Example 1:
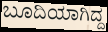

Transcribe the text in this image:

ಬೂದಿಯಾಗಿದ್ದ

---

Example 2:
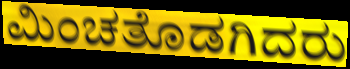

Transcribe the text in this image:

ಮಿಂಚತೊಡಗಿದರು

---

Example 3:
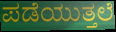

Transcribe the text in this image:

ಪಡೆಯುತ್ತಲೆ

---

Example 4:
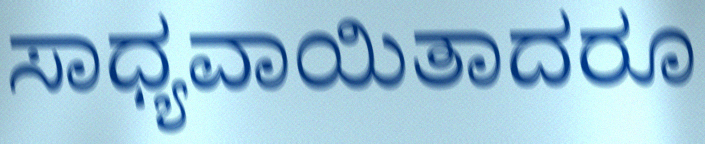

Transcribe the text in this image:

ಸಾಧ್ಯವಾಯಿತಾದರೂ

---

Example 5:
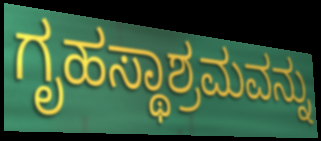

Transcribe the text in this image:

ಗೃಹಸ್ಥಾಶ್ರಮವನ್ನು